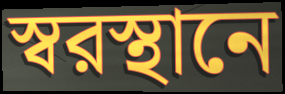
স্বরস্থানে